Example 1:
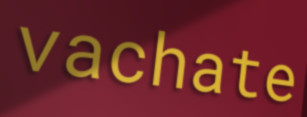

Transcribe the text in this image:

vachate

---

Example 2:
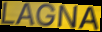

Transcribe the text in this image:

LAGNA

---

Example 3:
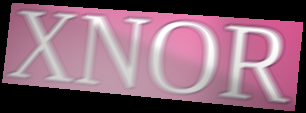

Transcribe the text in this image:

XNOR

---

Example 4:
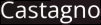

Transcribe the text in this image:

Castagno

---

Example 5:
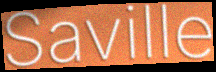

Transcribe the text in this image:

Saville